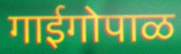
गाईगोपाळ